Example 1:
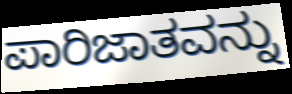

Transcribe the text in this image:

ಪಾರಿಜಾತವನ್ನು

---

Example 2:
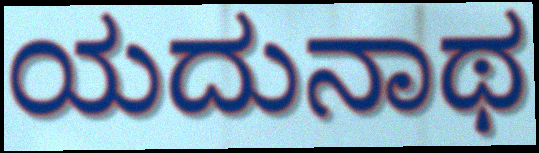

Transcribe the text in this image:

ಯದುನಾಥ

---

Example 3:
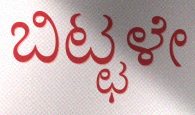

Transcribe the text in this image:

ಬಿಟ್ಟಳೇ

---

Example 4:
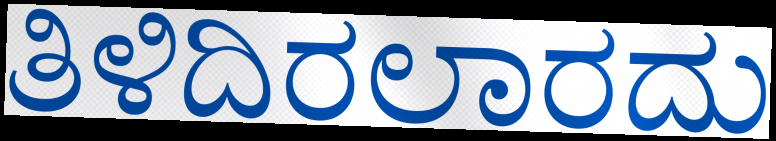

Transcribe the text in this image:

ತಿಳಿದಿರಲಾರದು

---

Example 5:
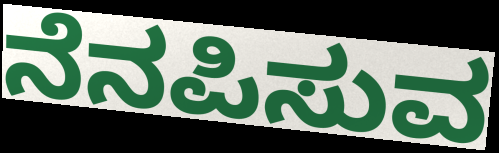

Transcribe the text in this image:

ನೆನಪಿಸುವ